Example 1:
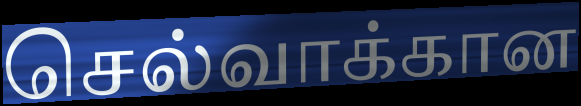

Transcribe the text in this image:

செல்வாக்கான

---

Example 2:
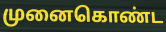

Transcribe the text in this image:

முனைகொண்ட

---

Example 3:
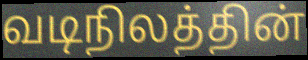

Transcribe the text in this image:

வடிநிலத்தின்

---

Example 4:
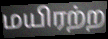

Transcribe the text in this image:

மயிரற்ற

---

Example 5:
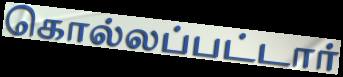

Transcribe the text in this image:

கொல்லப்பட்டார்